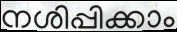
നശിപ്പിക്കാം